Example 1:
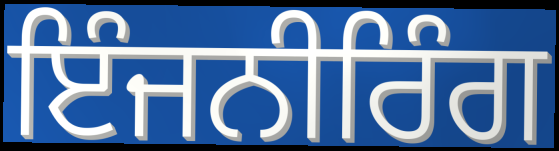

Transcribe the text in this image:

ਇੰਜਨੀਰਿੰਗ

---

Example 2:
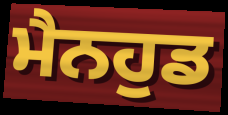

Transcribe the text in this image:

ਮੈਨਹੁਡ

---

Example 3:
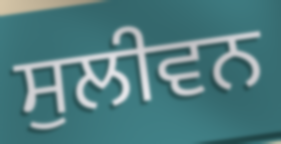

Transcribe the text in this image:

ਸੁਲੀਵਨ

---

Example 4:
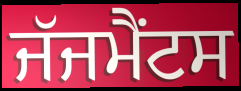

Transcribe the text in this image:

ਜੱਜਮੈਂਟਸ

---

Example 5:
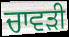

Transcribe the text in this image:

ਚਾਵੜੀ